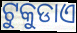
ଟୁକୁଡାଏ